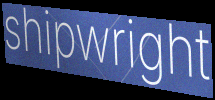
shipwright